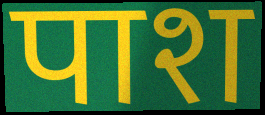
पाश